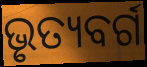
ଭୃତ୍ୟବର୍ଗ